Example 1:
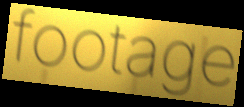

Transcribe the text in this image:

footage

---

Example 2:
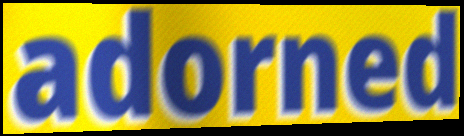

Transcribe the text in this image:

adorned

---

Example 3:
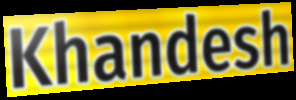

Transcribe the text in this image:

Khandesh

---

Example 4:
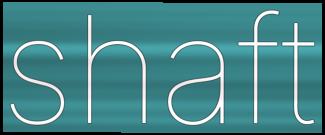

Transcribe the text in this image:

shaft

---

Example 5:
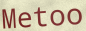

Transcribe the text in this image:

Metoo